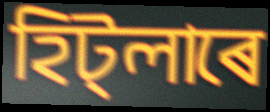
হিট্‌লাৰে